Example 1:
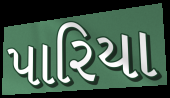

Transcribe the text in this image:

પારિયા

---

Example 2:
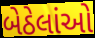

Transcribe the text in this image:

બેઠેલાંઓ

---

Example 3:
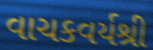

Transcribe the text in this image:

વાચકવર્યશ્રી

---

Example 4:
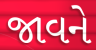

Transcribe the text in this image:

જાવને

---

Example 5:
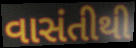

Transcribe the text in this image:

વાસંતીથી